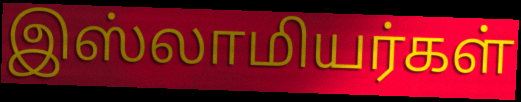
இஸ்லாமியர்கள்